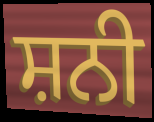
ਸ਼ਨੀ